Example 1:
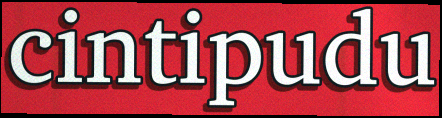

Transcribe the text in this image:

cintipudu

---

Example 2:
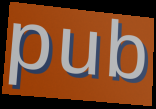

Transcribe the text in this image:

pub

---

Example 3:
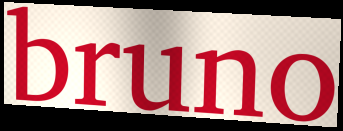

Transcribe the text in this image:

bruno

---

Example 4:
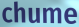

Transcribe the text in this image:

chume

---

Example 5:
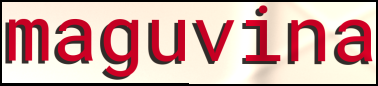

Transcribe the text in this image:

maguvina